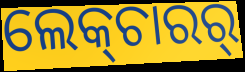
ଲେକ୍‍ଚାରର୍